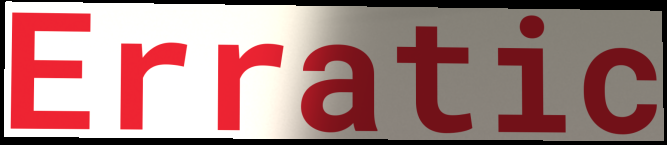
Erratic